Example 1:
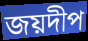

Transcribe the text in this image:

জয়দীপ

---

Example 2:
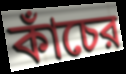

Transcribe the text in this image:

কাঁচের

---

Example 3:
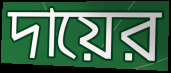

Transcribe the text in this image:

দায়ের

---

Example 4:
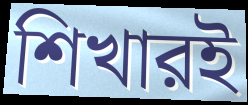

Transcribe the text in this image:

শিখারই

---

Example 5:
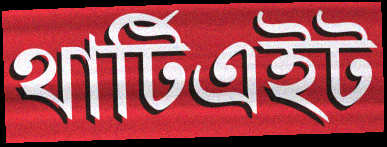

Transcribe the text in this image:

থার্টিএইট